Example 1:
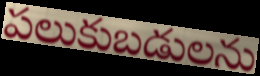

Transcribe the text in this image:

పలుకుబడులను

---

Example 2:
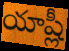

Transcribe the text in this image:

యాష్లీ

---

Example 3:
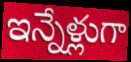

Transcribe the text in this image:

ఇన్నేళ్లుగా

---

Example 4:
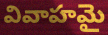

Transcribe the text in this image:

వివాహమై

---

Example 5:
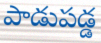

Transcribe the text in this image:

పాడుపడ్డ